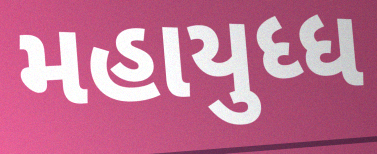
મહાયુધ્ધ